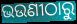
ଭଉଣୀଠାରୁ